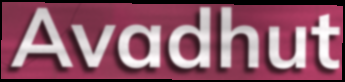
Avadhut